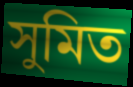
সুমিত